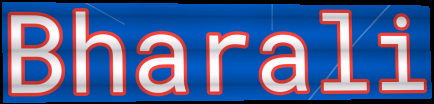
Bharali